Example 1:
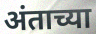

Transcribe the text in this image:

अंताच्या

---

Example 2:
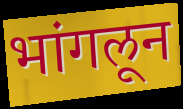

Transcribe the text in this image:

भांगलून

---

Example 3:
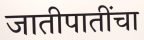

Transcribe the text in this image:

जातीपातींचा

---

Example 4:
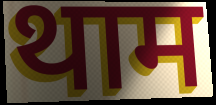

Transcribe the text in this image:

थाम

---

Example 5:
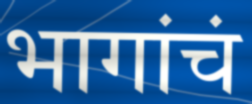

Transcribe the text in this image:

भागांचं